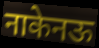
नाकेनऊ